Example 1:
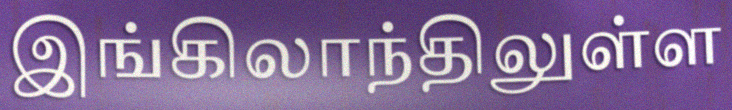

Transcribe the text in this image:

இங்கிலாந்திலுள்ள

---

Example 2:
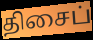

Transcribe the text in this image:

திசைப்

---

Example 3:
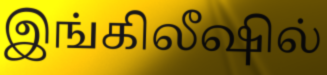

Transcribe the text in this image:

இங்கிலீஷில்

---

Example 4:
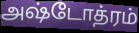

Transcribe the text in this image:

அஷ்டோத்ரம்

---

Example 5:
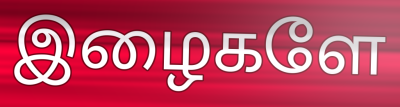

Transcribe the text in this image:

இழைகளே